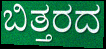
ಬಿತ್ತರದ